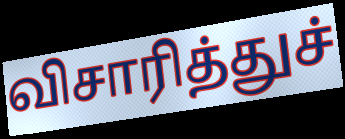
விசாரித்துச்